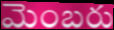
మెంబరు